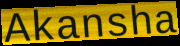
Akansha